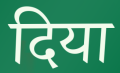
दिया